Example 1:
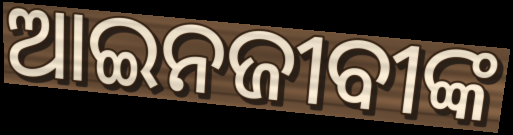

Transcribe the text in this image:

ଆଇନଜୀବୀଙ୍କ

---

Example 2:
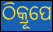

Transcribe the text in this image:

ଠିକ୍ରୂପେ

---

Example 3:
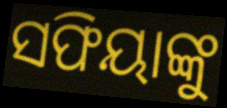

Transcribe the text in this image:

ସଫିୟାଙ୍କୁ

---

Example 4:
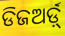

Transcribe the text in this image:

ଡିଜଅର୍ଡ଼୍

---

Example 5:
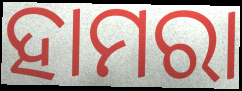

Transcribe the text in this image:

ହାମରା